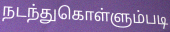
நடந்துகொள்ளும்படி